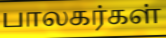
பாலகர்கள்